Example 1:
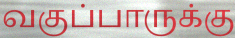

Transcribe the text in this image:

வகுப்பாருக்கு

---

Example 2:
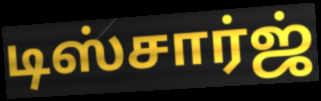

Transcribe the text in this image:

டிஸ்சார்ஜ்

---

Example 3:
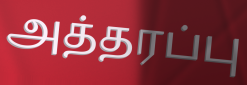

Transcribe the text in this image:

அத்தரப்பு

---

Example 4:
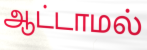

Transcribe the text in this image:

ஆட்டாமல்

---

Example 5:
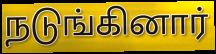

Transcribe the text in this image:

நடுங்கினார்